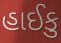
હાઈકુ